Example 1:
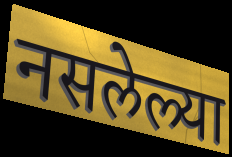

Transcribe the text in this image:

नसलेल्या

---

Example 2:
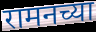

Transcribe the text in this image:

रामनच्या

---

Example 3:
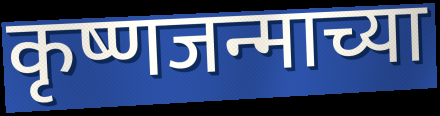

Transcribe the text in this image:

कृष्णजन्माच्या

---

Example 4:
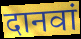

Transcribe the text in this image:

दानवां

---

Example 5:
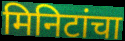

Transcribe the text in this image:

मिनिटांचा